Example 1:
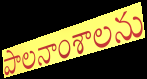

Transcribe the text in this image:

పాలనాంశాలను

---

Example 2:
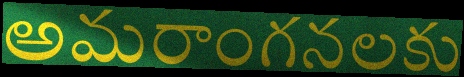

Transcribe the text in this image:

అమరాంగనలకు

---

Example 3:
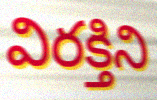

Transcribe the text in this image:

విరక్తిని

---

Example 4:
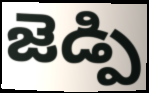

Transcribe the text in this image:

జెడ్పి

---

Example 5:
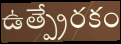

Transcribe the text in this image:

ఉత్ప్రేరకం